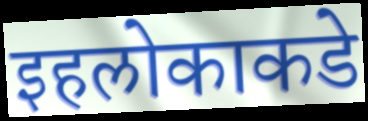
इहलोकाकडे